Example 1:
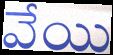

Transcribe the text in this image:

వేయి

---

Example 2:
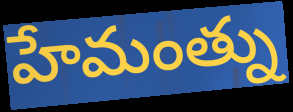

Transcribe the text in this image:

హేమంత్ను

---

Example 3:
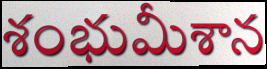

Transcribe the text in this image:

శంభుమీశాన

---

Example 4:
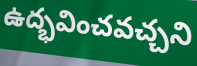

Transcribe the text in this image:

ఉద్భవించవచ్చని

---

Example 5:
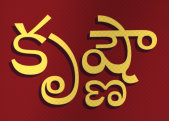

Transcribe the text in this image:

కృష్ణౌ